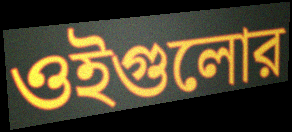
ওইগুলোর